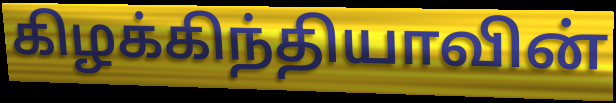
கிழக்கிந்தியாவின்